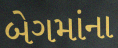
બેગમાંના